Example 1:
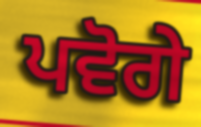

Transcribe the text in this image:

ਪਵੋਗੇ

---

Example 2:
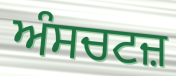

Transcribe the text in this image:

ਅੰਸਚਟਜ਼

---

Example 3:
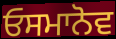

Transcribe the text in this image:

ਓਸਮਾਨੋਵ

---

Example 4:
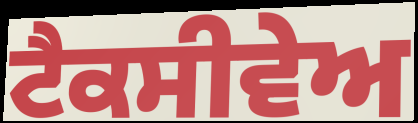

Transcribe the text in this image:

ਟੈਕਸੀਵੇਅ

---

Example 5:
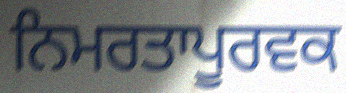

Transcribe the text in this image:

ਨਿਮਰਤਾਪੂਰਵਕ